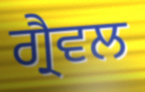
ਗ੍ਰੈਵਲ